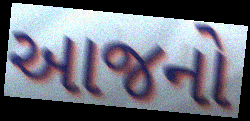
આજનો